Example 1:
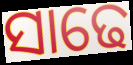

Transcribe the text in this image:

ସାଢେ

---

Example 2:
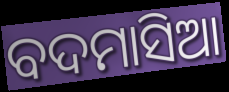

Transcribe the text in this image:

ବଦମାସିଆ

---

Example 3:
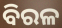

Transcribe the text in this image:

ବିରଳ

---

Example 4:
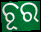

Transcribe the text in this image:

ଚୂର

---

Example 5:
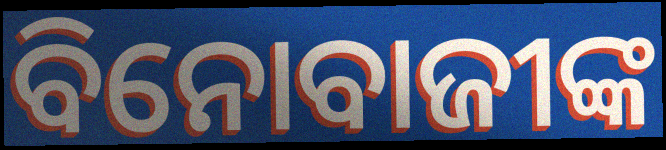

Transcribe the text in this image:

ବିନୋବାଜୀଙ୍କ